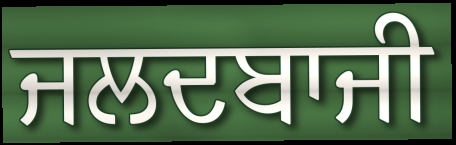
ਜਲਦਬਾਜੀ